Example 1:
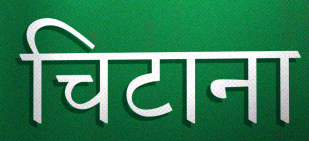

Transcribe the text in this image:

चिटाना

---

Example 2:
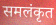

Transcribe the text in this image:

समलंकृत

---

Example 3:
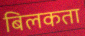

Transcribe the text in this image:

बिलकता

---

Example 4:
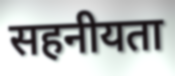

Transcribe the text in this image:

सहनीयता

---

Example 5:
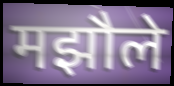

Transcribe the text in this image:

मझौले